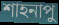
শাহনাপু